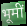
भूमीं